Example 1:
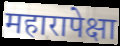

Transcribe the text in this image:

महारापेक्षा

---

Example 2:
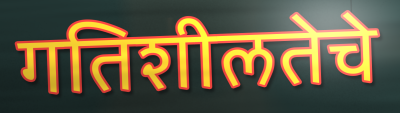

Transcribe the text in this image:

गतिशीलतेचे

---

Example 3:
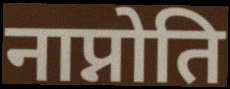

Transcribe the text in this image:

नाप्नोति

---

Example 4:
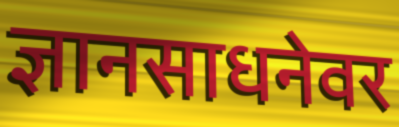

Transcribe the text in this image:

ज्ञानसाधनेवर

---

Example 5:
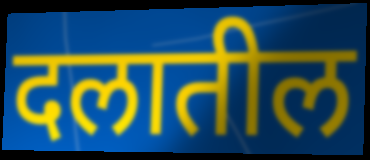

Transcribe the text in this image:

दलातील